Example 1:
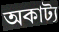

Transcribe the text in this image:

অকাট্য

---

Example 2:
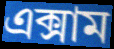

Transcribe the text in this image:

এক্সাম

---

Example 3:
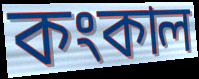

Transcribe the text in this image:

কংকাল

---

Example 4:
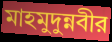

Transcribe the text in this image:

মাহমুদুন্নবীর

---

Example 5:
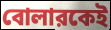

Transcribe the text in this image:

বোলারকেই